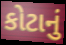
કોટાનું